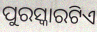
ପୁରସ୍କାରଟିଏ